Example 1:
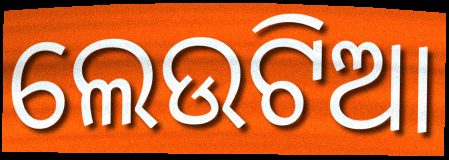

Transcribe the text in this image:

ଲେଉଟିଆ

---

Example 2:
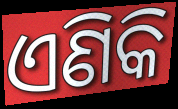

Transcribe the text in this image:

ଏଣିକି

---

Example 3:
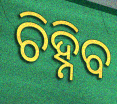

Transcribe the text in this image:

ଚିହ୍ନିବ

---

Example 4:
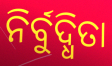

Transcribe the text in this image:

ନିର୍ବୁଦ୍ଧିତା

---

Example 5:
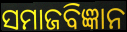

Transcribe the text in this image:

ସମାଜବିଜ୍ଞାନ